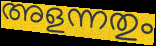
അളന്നതും